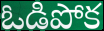
ఓడిపోక